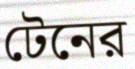
টেনের